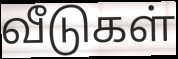
வீடுகள்